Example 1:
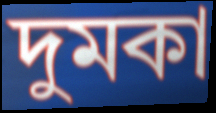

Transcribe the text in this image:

দুমকা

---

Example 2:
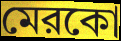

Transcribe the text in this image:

মেরকো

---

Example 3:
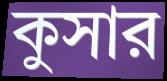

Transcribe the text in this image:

কুসার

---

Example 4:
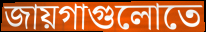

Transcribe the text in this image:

জায়গাগুলোতে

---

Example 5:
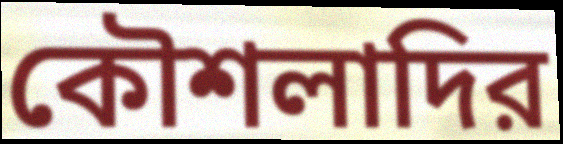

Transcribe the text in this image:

কৌশলাদির